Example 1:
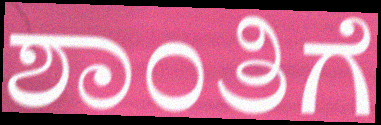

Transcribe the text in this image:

ಶಾಂತಿಗೆ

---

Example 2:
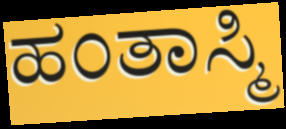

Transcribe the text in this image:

ಹಂತಾಸ್ಮಿ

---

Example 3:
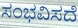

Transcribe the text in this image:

ಸಂಭವಿಸದೆ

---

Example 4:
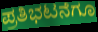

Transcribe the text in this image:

ಪ್ರತಿಭಟನೆಗೂ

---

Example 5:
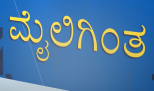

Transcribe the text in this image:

ಮೈಲಿಗಿಂತ